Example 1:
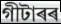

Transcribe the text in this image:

গীটাৰৰ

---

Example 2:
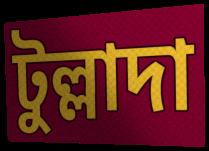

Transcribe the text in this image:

টুল্লাদা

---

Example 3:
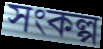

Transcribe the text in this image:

সংকল্প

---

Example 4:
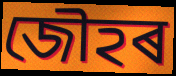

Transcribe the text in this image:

জৌহৰ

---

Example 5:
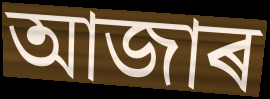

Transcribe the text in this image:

আজাৰ